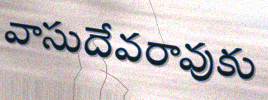
వాసుదేవరావుకు